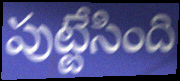
పుట్టేసింది